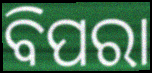
ବିପରା